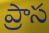
ప్రాస